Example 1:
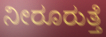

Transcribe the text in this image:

ನೀರೂರುತ್ತೆ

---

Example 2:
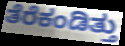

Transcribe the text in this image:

ತೆರೆಕಂಡಿತ್ತು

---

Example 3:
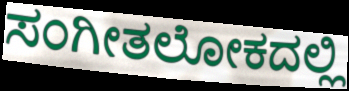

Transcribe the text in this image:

ಸಂಗೀತಲೋಕದಲ್ಲಿ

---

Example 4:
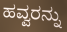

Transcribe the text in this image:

ಹವ್ವರನ್ನು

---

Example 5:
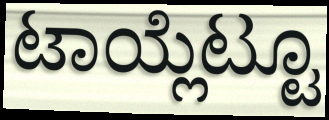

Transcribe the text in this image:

ಟಾಯ್ಲೆಟ್ಟೂ